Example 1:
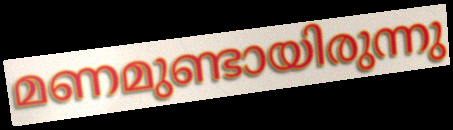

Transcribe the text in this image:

മണമുണ്ടായിരുന്നു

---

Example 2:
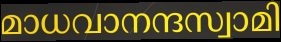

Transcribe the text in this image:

മാധവാനന്ദസ്വാമി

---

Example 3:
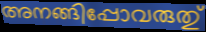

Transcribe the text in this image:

അനങ്ങിപ്പോവരുതു്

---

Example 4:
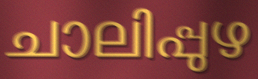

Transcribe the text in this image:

ചാലിപ്പുഴ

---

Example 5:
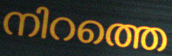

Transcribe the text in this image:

നിറത്തെ